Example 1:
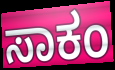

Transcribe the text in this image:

ಸಾಕಂ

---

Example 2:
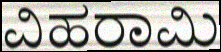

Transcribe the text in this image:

ವಿಹರಾಮಿ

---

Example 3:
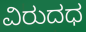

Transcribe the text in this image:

ವಿರುದಧ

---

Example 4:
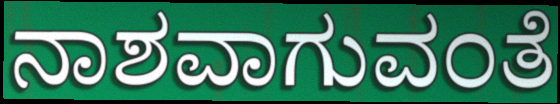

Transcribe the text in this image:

ನಾಶವಾಗುವಂತೆ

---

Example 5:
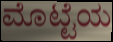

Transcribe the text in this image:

ಮೊಟ್ಟೆಯ